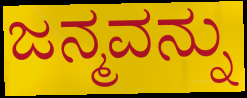
ಜನ್ಮವನ್ನು